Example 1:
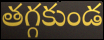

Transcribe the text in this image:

తగ్గకుండ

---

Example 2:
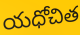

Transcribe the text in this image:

యధోచిత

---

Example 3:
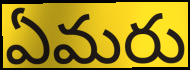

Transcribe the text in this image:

ఏమరు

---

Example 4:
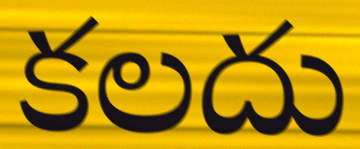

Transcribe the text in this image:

కలదు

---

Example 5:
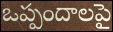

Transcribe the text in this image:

ఒప్పందాలపై